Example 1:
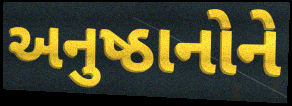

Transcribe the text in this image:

અનુષ્ઠાનોને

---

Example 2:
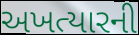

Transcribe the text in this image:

અખત્યારની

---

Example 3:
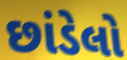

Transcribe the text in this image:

છાંડેલો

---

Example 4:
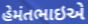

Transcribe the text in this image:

હેમંતભાઇએ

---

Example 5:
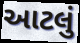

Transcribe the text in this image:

આટલું